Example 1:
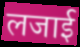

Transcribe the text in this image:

लजाई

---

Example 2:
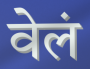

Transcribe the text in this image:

वेलं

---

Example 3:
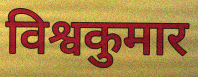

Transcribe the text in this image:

विश्वकुमार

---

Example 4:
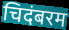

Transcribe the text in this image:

चिदंबरम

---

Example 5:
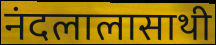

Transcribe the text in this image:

नंदलालासाथी